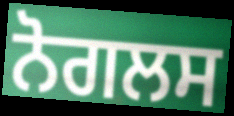
ਨੋਗਲਸ